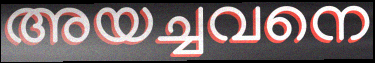
അയച്ചവനെ